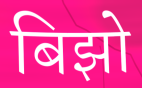
बिझो